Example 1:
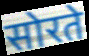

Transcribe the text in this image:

सोरते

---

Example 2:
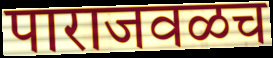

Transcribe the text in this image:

पाराजवळच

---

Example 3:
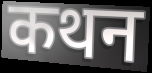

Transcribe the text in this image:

कथन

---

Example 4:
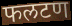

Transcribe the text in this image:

फलटण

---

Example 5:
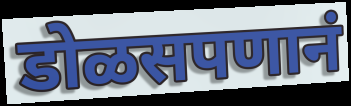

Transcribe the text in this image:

डोळसपणानं